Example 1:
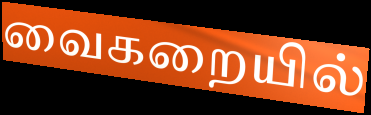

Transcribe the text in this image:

வைகறையில்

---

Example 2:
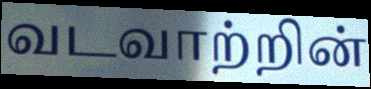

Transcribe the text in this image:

வடவாற்றின்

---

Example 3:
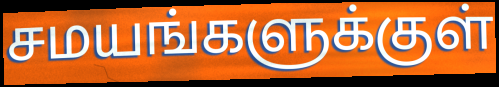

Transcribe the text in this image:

சமயங்களுக்குள்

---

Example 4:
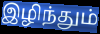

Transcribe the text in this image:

இழிந்தும்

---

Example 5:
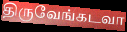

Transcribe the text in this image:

திருவேங்கடவா